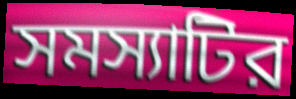
সমস্যাটির